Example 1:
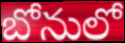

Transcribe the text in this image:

బోనులో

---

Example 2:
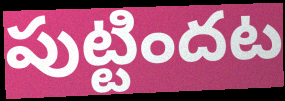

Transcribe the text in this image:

పుట్టిందట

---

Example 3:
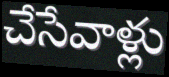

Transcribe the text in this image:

చేసేవాళ్లు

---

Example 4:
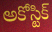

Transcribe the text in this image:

అకోస్టిక్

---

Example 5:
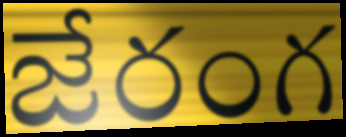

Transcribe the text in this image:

జేరంగ